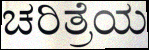
ಚರಿತ್ರೆಯ